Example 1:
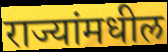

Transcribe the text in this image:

राज्यांमधील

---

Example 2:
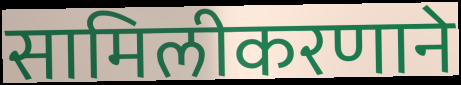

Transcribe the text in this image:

सामिलीकरणाने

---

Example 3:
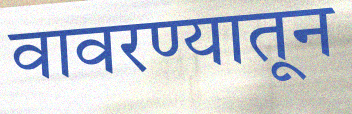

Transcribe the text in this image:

वावरण्यातून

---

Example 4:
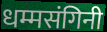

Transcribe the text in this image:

धम्मसंगिनी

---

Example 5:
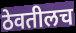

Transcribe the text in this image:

ठेवतीलच